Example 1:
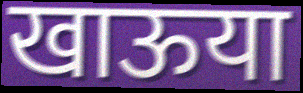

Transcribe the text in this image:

खाऊया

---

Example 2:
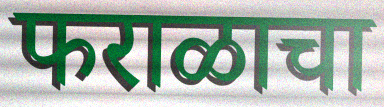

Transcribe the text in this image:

फराळाचा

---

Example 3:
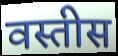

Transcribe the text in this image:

वस्तीस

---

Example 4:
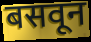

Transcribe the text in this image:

बसवून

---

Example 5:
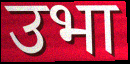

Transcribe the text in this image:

उभा